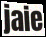
jaie